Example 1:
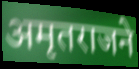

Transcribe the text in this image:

अमृतराजने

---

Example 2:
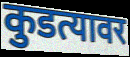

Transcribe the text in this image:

कुडत्यावर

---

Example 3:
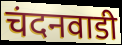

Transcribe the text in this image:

चंदनवाडी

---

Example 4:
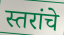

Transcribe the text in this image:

स्तरांचे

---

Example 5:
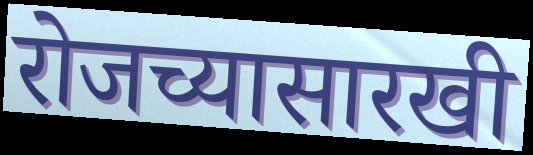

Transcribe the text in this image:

रोजच्यासारखी